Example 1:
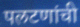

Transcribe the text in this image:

पलटणांची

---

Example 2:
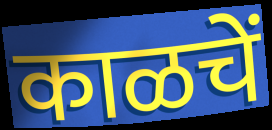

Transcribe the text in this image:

काळचें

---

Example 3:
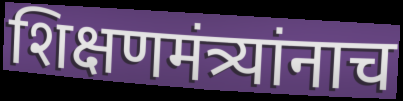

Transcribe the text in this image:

शिक्षणमंत्र्यांनाच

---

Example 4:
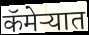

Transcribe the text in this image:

कॅमेऱ्यात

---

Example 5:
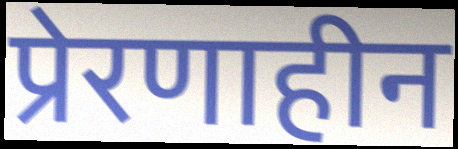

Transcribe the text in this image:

प्रेरणाहीन